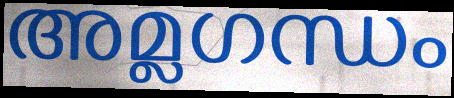
അമ്ലഗന്ധം